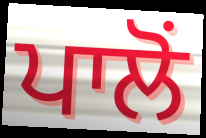
ਪਾਲੋਂ